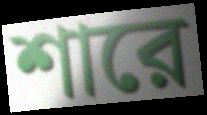
শারে